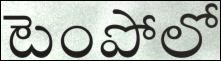
టెంపోలో